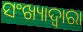
ସଂଖ୍ୟାଦ୍ୱାରା